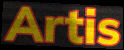
Artis